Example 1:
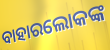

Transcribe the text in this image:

ବାହାରଲୋକଙ୍କ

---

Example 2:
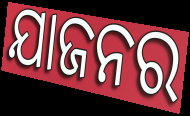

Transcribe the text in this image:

ଯାଜନର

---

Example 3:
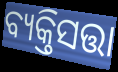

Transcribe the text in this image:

ବ୍ୟକ୍ତିସତ୍ତା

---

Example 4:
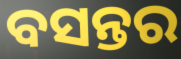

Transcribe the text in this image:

ବସନ୍ତର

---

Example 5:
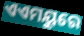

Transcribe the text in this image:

ଏଏମୟୁରେ